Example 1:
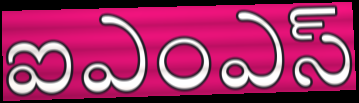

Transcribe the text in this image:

ఐఎంఎస్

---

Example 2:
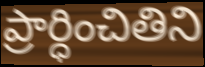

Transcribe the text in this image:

ప్రార్ధించితిని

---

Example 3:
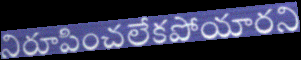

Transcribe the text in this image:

నిరూపించలేకపోయారని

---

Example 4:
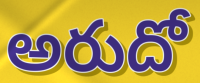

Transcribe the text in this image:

అరుదో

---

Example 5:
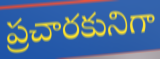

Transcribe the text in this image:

ప్రచారకునిగా